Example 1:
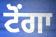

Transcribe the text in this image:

ਟੋਂਗਾ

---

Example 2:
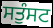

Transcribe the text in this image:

ਸਤੁੰਸਟ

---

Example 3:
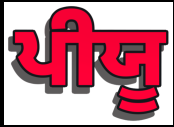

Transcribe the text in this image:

ਪੀਯੂ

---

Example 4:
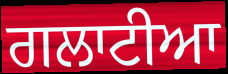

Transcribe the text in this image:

ਗਲਾਟੀਆ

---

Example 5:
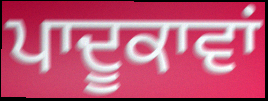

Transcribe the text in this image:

ਪਾਦੂਕਾਵਾਂ